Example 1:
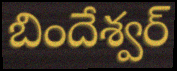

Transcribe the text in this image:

బిందేశ్వర్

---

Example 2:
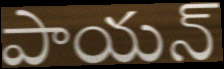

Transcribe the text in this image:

పాయన్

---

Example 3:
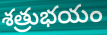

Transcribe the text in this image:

శత్రుభయం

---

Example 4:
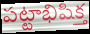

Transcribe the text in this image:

పట్టాభిషిక్త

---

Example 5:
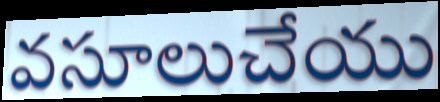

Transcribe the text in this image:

వసూలుచేయు